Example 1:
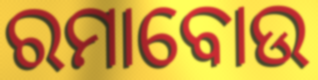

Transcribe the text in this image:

ରମାବୋଉ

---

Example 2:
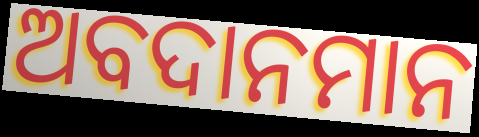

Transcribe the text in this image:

ଅବଦାନମାନ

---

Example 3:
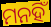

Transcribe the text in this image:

ମନହିଁ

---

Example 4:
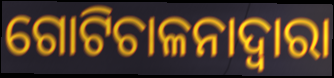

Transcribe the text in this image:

ଗୋଟିଚାଳନାଦ୍ୱାରା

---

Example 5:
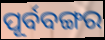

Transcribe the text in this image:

ପୂର୍ବବଙ୍ଗର